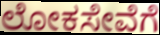
ಲೋಕಸೇವೆಗೆ